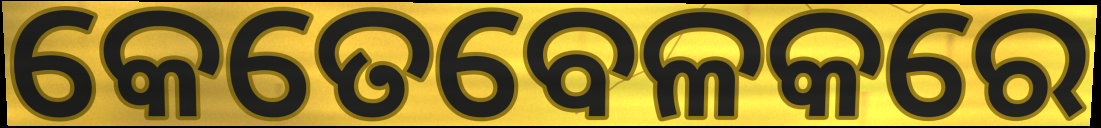
କେତେବେଳକରେ